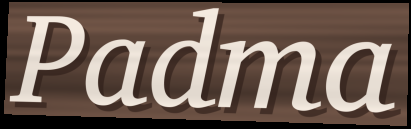
Padma